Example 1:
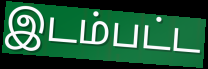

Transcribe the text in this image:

இடம்பட்ட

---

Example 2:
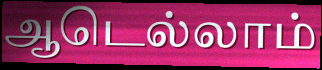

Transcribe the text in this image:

ஆடெல்லாம்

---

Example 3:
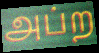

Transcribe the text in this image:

அப்ற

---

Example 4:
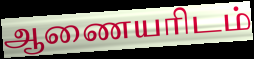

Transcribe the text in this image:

ஆணையரிடம்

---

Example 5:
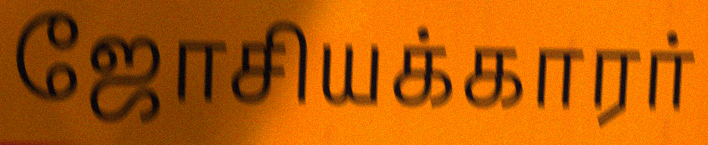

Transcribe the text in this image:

ஜோசியக்காரர்